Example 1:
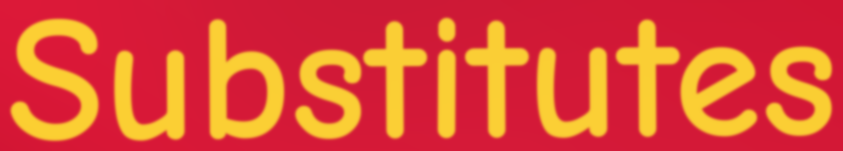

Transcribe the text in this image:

Substitutes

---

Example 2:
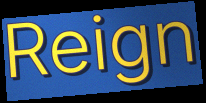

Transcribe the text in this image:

Reign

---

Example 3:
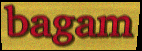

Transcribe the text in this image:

bagam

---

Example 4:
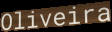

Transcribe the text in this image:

Oliveira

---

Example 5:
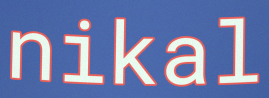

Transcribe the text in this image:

nikal